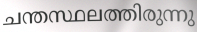
ചന്തസ്ഥലത്തിരുന്നു